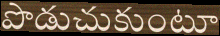
పొడుచుకుంటూ